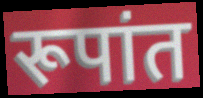
रूपांत